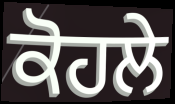
ਕੋਹਲੇ